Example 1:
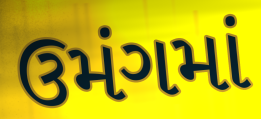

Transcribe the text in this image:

ઉમંગમાં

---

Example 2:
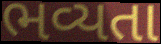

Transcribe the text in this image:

ભવ્યતા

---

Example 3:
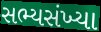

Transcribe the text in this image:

સભ્યસંખ્યા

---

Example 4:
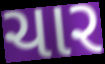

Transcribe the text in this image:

ચાર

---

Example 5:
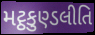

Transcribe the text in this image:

મટ્ઠકુણ્ડલીતિ